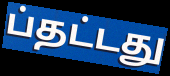
ப்தட்டது